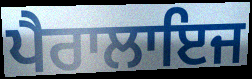
ਪੈਰਾਲਾਇਜ